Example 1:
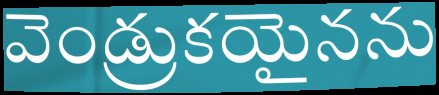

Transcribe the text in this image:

వెండ్రుకయైనను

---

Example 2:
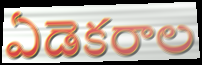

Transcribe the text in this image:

ఏడెకరాల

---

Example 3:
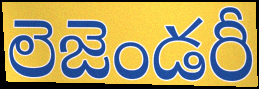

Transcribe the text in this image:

లెజెండరీ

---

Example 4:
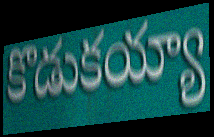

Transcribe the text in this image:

కొడుకయ్యా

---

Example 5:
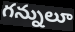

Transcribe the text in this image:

గన్నులూ